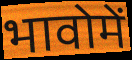
भावोमें